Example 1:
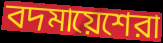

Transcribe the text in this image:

বদমায়েশেরা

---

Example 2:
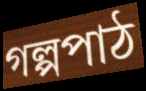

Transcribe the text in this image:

গল্পপাঠ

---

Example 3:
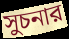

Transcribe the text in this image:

সুচনার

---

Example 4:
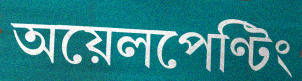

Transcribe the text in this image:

অয়েলপেণ্টিং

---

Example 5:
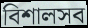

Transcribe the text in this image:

বিশালসব